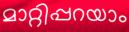
മാറ്റിപ്പറയാം